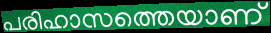
പരിഹാസത്തെയാണ്